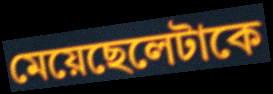
মেয়েছেলেটাকে